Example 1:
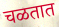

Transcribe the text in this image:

चळतात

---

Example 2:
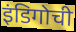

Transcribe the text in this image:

इंडिगोची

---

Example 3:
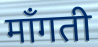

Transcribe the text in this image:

माँगती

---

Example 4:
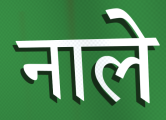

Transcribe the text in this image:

नाले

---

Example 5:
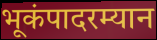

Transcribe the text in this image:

भूकंपादरम्यान